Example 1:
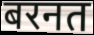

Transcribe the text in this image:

बरनत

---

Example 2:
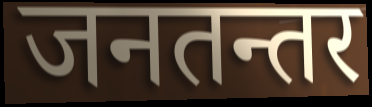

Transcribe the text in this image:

जनतन्तर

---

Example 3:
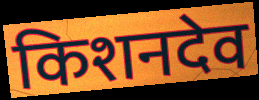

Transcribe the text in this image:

किशनदेव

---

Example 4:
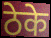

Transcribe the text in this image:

ठेके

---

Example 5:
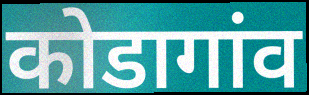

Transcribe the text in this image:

कोडागांव